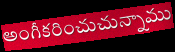
అంగీకరించుచున్నాము